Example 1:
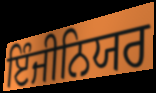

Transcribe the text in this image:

ਇੰਜੀਨਿਯਰ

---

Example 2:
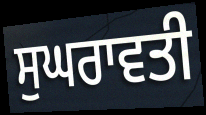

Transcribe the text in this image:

ਸੁਘਰਾਵਤੀ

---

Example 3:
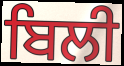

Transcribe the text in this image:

ਬਿਲੀ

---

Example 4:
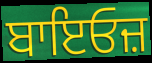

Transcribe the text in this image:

ਬਾਇਓਜ਼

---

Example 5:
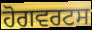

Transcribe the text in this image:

ਹੋਗਵਰਟਸ